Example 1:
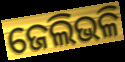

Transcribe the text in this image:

ଜେଲିଭଳି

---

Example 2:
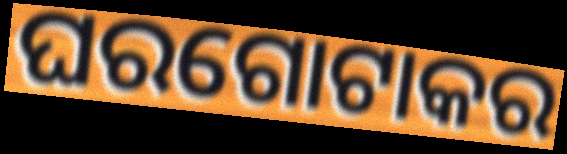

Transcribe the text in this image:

ଘରଗୋଟାକର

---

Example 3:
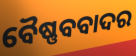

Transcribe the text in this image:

ବୈଷ୍ଣବବାଦର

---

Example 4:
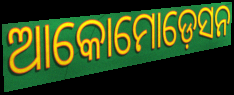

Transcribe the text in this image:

ଆକୋମୋଡ଼େସନ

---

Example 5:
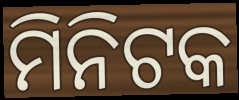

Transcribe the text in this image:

ମିନିଟକ